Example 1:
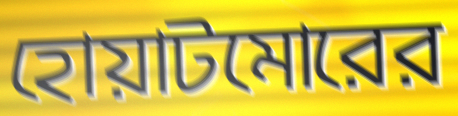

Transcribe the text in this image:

হোয়াটমোরের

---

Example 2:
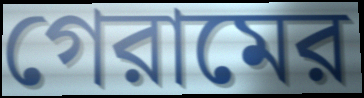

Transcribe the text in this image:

গেরামের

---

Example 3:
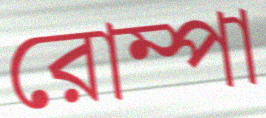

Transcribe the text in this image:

রোম্পা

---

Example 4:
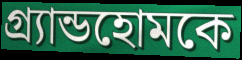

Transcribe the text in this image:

গ্র্যান্ডহোমকে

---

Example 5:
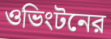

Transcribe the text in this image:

ওভিংটনের